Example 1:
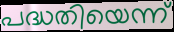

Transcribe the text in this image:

പദ്ധതിയെന്ന്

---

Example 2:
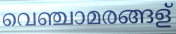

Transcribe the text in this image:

വെഞ്ചാമരങ്ങള്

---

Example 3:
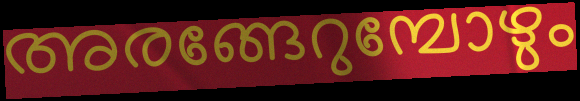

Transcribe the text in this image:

അരങ്ങേറുമ്പോഴും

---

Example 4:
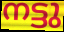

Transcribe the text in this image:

നട്ടു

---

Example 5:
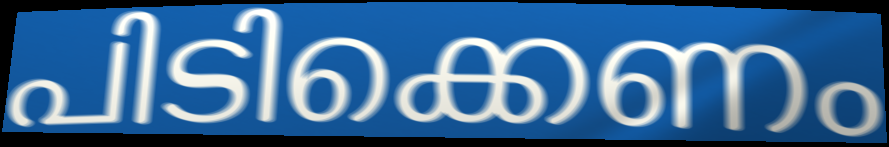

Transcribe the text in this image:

പിടിക്കെണം